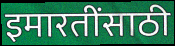
इमारतींसाठी